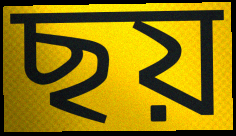
ছয়